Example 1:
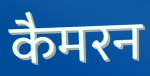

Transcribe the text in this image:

कैमरन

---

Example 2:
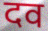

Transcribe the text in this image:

दव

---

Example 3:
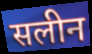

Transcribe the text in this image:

सलीन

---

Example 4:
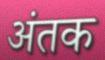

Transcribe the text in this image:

अंतक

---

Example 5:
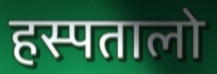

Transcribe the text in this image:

हस्पतालो